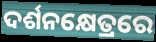
ଦର୍ଶନକ୍ଷେତ୍ରରେ